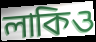
লাকিও